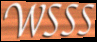
WSSS